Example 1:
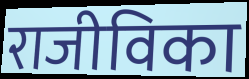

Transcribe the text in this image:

राजीविका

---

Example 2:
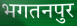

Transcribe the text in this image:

भगतनपुर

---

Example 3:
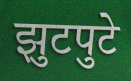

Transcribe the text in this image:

झुटपुटे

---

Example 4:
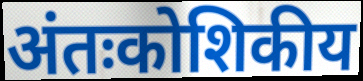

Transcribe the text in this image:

अंतःकोशिकीय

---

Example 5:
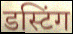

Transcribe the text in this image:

डस्टिंग